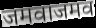
जमवाजमव